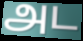
அட